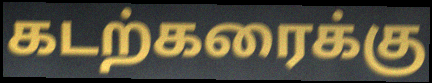
கடற்கரைக்கு